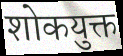
शोकयुक्त